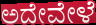
ಅದೇವೇಳೆ